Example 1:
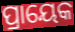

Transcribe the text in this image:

ପ୍ରାୟେକ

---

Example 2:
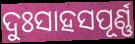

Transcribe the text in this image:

ଦୁଃସାହସପୂର୍ଣ୍ଣ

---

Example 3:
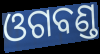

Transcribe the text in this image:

ଓଗବଣ୍ଡ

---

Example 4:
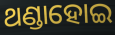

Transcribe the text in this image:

ଥଣ୍ଡାହୋଇ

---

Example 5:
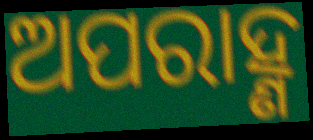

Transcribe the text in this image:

ଅପରାହ୍ଣ